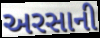
અરસાની